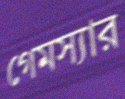
গেমস্যার